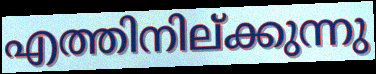
എത്തിനില്ക്കുന്നു